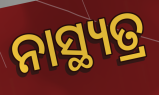
ନାସ୍ଥ୍ୟତ୍ର